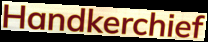
Handkerchief